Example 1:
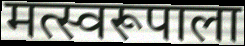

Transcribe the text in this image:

मत्स्वरूपाला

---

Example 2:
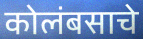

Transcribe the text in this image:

कोलंबसाचे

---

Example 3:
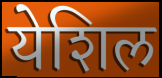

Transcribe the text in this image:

येशिल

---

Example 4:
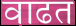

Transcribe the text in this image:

वाढत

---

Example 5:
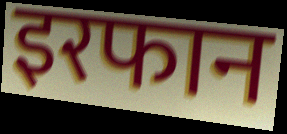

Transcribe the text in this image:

इरफान